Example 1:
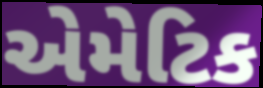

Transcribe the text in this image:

એમેટિક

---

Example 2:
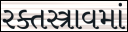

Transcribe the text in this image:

રક્તસ્ત્રાવમાં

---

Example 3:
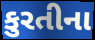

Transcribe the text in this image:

કુરતીના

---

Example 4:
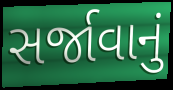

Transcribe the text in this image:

સર્જાવાનું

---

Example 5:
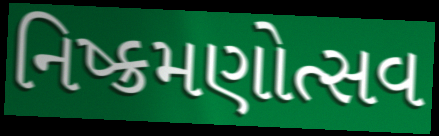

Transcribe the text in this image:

નિષ્ક્રમણોત્સવ